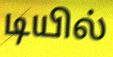
டியில்